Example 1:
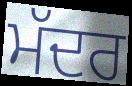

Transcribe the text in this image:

ਮੱਦਰ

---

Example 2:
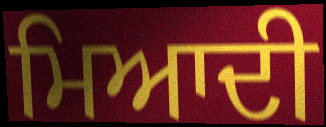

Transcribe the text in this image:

ਮਿਆਦੀ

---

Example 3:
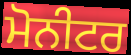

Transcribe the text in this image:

ਮੋਨੀਟਰ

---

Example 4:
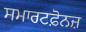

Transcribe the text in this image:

ਸਮਾਰਟਫ਼ੋਨਜ਼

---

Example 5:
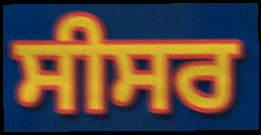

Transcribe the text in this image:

ਸੀਸਰ